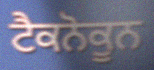
ਟੈਕਨੋਕੂਨ